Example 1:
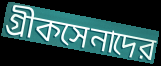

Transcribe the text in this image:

গ্রীকসেনাদের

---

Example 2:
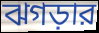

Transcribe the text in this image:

ঝগড়ার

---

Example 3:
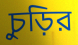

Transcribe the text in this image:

চুড়ির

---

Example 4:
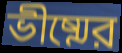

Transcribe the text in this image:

ভীষ্মের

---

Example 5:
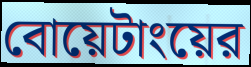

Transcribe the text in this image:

বোয়েটাংয়ের